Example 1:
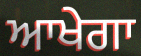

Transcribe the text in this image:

ਆਖੇਗਾ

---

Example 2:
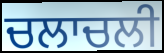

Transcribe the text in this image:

ਚਲਾਚਲੀ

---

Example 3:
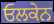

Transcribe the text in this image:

ਓਲਕੇਨ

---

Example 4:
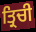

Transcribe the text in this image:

ਤ੍ਰਿਚੀ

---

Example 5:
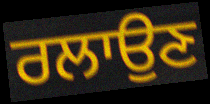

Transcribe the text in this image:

ਰਲਾਉਣ